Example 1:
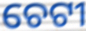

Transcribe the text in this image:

ଚେଟୀ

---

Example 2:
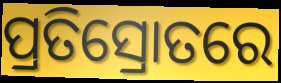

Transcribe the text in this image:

ପ୍ରତିସ୍ରୋତରେ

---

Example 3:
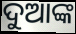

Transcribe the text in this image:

ଦୁଆଙ୍କ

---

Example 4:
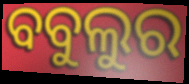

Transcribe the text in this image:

ବବୁଲୁର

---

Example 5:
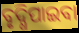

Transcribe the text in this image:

ବୃଦ୍ଧିପାଇବା